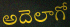
అదెలాగో